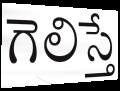
గెలిస్తే